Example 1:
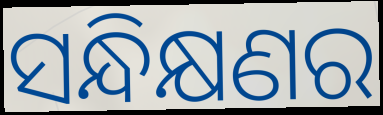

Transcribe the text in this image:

ସନ୍ଧିକ୍ଷଣର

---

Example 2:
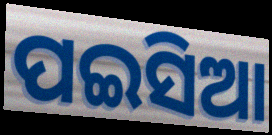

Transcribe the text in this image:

ପଇସିଆ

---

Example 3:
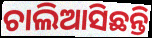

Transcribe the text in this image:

ଚାଲିଆସିଛନ୍ତି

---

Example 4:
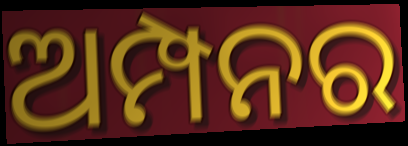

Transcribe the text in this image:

ଅମ୍ପନର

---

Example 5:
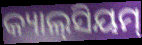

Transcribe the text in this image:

କ୍ୟାଲ୍‌ସିୟମ୍